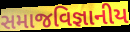
સમાજવિજ્ઞાનીય